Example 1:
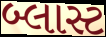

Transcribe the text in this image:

બ્લાસ્ટ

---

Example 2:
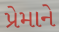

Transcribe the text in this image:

પ્રેમાને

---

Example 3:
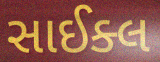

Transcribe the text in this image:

સાઈક્લ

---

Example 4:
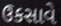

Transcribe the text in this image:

ઉકસાવે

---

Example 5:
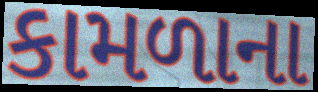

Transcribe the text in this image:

કામળાના